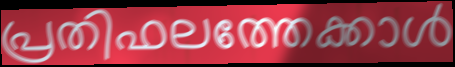
പ്രതിഫലത്തേക്കാൾ